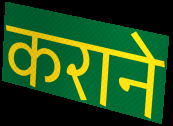
कराने